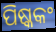
ପିଷ୍କକଂ